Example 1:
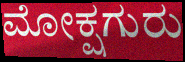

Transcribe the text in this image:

ಮೋಕ್ಷಗುರು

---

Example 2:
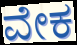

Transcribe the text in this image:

ವೇಕ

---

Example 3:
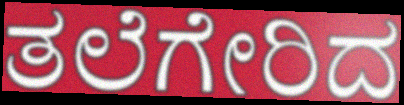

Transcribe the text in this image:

ತಲೆಗೇರಿದ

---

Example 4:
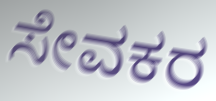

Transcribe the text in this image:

ಸೇವಕರ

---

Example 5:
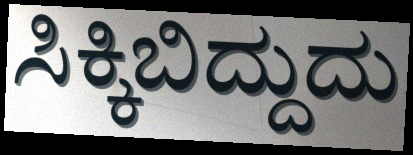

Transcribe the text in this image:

ಸಿಕ್ಕಿಬಿದ್ದುದು